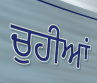
ਚੁਹੀਆਂ